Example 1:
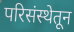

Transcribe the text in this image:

परिसंस्थेतून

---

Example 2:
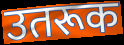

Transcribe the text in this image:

उतरूक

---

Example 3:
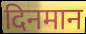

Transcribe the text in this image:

दिनमान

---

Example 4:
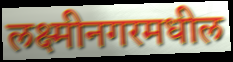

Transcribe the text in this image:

लक्ष्मीनगरमधील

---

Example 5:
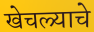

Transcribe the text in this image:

खेचल्याचे